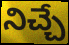
నిచ్చే